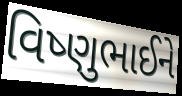
વિષ્ણુભાઈને